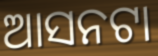
ଆସନଟା